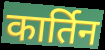
कार्तिन